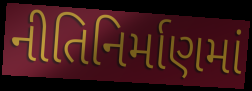
નીતિનિર્માણમાં